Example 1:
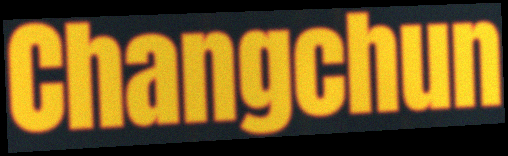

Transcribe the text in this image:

Changchun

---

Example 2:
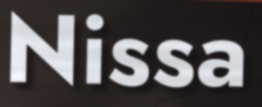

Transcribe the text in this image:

Nissa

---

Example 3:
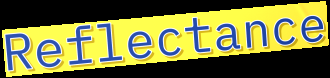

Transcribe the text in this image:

Reflectance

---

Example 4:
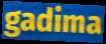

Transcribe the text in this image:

gadima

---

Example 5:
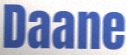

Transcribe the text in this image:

Daane